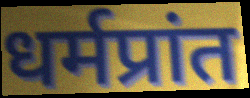
धर्मप्रांत